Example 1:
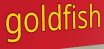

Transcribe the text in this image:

goldfish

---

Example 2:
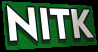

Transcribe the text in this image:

NITK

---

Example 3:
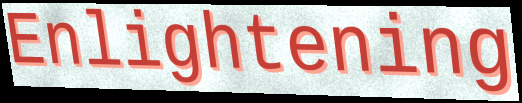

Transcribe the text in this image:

Enlightening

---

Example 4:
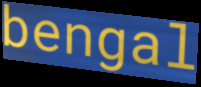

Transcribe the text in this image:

bengal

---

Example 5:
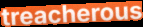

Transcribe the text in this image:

treacherous